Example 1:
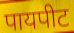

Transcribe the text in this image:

पायपीट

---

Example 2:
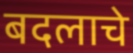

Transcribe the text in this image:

बदलाचे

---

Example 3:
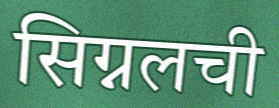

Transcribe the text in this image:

सिग्नलची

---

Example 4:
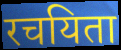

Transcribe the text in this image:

रचयिता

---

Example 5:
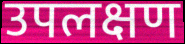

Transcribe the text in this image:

उपलक्षण